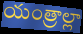
యంత్రాల్లా